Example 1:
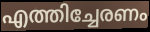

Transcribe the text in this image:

എത്തിച്ചേരണം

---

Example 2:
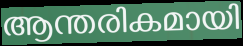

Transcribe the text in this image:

ആന്തരികമായി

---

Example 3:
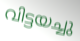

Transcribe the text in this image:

വിട്ടയച്ചു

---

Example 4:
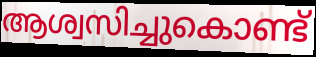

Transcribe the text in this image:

ആശ്വസിച്ചുകൊണ്ട്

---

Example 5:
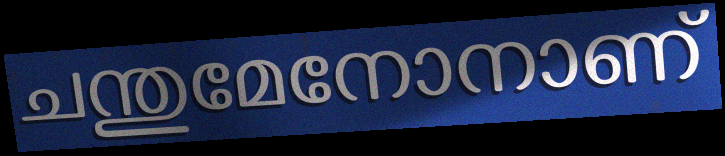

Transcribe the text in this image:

ചന്തുമേനോനാണ്